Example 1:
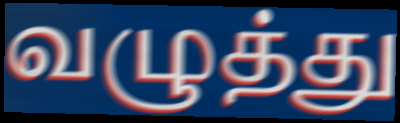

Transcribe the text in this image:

வழுத்து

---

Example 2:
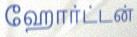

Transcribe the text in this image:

ஹோர்ட்டன்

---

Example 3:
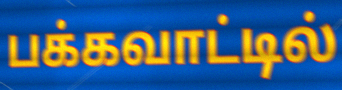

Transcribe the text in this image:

பக்கவாட்டில்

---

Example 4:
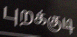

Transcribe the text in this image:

புறக்குடி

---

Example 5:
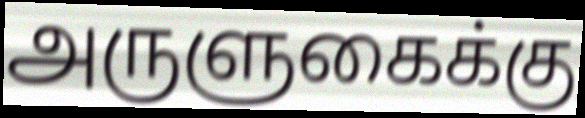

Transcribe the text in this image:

அருளுகைக்கு